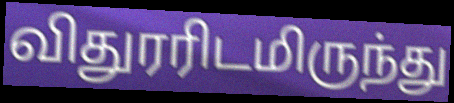
விதுரரிடமிருந்து